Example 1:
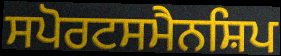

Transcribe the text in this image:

ਸਪੋਰਟਸਮੈਨਸ਼ਿਪ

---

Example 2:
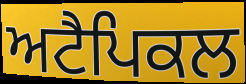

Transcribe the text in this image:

ਅਟੈਪਿਕਲ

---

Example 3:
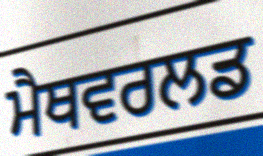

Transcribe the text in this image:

ਮੈਥਵਰਲਡ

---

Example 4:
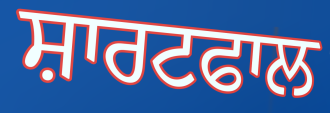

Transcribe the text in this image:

ਸ਼ਾਰਟਫਾਲ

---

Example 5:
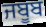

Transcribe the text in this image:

ਜਬੂਬ